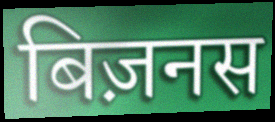
बिज़नस